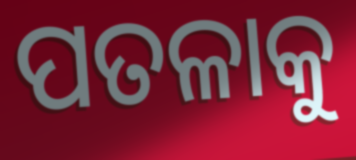
ପତଳାକୁ